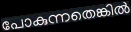
പോകുന്നതെങ്കിൽ